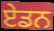
ਏਡਨ